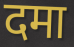
दमा